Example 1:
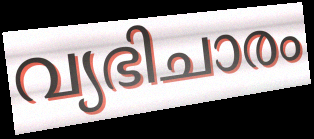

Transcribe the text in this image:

വ്യഭിചാരം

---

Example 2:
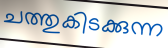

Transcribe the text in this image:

ചത്തുകിടക്കുന്ന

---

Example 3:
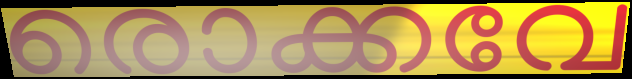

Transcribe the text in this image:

രൊക്കവേ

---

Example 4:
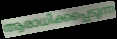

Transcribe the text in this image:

ആരാധിക്കപ്പെടുന്ന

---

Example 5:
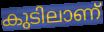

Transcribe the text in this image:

കുടിലാണ്